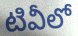
టివీలో